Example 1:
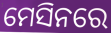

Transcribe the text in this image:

ମେସିନରେ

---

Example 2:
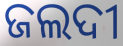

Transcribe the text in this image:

ଜଲଦୀ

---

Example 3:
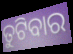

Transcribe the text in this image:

ତୁଟିବାର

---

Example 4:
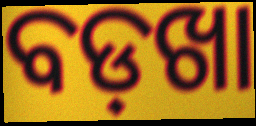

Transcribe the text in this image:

ବଡ଼ଖା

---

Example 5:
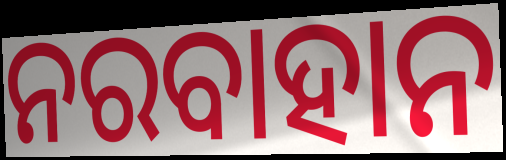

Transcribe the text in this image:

ନରବାହାନ